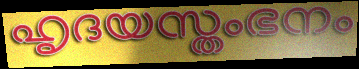
ഹൃദയസ്തംഭനം